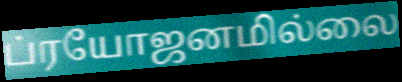
ப்ரயோஜனமில்லை